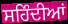
ਸਹਿੰਦੀਆਂ